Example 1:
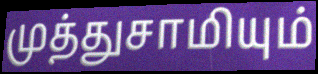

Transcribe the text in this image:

முத்துசாமியும்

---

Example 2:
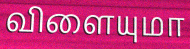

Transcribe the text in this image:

விளையுமா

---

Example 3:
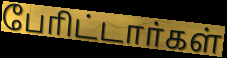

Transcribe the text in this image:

பேரிட்டார்கள்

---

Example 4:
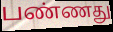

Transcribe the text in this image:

பண்ணது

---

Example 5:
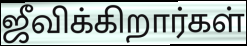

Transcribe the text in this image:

ஜீவிக்கிறார்கள்